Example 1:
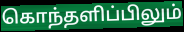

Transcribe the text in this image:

கொந்தளிப்பிலும்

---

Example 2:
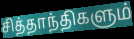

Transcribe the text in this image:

சித்தாந்திகளும்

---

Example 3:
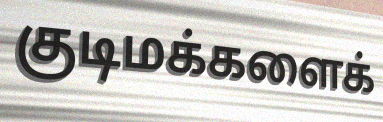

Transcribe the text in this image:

குடிமக்களைக்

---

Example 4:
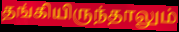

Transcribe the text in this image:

தங்கியிருந்தாலும்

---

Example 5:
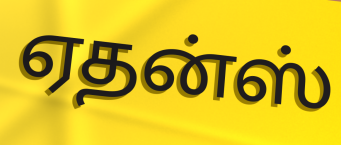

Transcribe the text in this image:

ஏதன்ஸ்